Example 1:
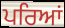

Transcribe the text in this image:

ਪਰਿਆਂ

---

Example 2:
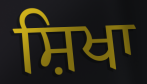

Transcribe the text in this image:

ਸ਼ਿਖਾ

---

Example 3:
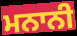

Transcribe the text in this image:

ਮਨਾਨੀ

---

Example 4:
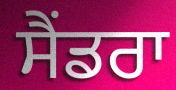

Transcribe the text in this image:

ਸੈਂਡਰਾ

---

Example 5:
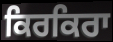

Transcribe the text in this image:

ਕਿਰਕਿਰਾ